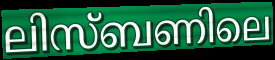
ലിസ്ബണിലെ